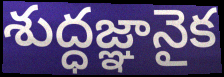
శుద్ధజ్ఞానైక